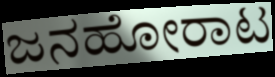
ಜನಹೋರಾಟ